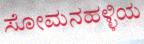
ಸೋಮನಹಳ್ಳಿಯ